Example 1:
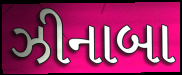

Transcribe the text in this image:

ઝીનાબા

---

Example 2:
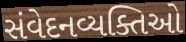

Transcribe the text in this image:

સંવેદનવ્યક્તિઓ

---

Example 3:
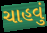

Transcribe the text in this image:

ચાહવું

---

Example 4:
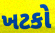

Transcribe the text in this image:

ખટકો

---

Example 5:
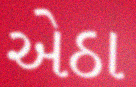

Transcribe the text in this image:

એઠા